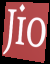
Jio